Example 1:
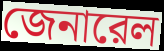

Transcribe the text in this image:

জেনারেল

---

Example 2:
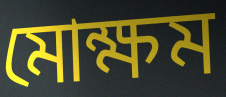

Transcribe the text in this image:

মোক্ষম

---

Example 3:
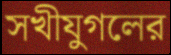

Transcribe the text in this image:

সখীযুগলের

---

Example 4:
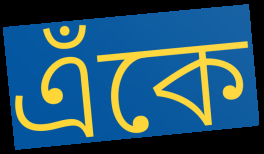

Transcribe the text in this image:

এঁকে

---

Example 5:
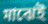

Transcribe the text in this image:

মাঝেই